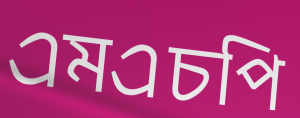
এমএচপি